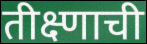
तीक्ष्णाची